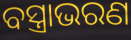
ବସ୍ତ୍ରାଭରଣ